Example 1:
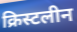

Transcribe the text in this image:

क्रिस्टलीन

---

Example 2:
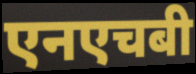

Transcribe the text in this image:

एनएचबी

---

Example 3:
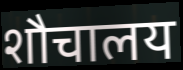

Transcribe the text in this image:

शौचालय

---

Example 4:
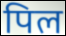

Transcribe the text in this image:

पिल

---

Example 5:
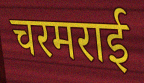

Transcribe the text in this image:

चरमराई